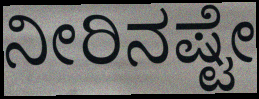
ನೀರಿನಷ್ಟೇ